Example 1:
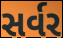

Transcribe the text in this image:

સર્વર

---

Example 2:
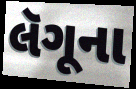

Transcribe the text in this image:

લૅગૂના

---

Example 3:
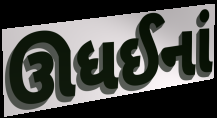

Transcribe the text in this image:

ઊધઈનાં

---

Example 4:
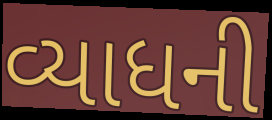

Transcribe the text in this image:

વ્યાધની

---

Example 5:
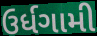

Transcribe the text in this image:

ઉર્ધગામી